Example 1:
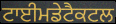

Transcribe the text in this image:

ਟਾਈਮਡੇਟੈਕਟਲ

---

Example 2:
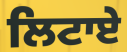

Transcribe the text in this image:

ਲਿਟਾਏ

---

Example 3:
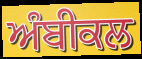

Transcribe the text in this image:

ਅੰਬੀਕਲ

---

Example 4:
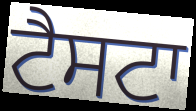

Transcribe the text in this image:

ਟੈਸਟਾ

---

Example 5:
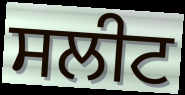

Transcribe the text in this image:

ਸਲੀਟ